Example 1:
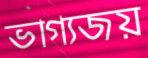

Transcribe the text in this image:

ভাগ্যজয়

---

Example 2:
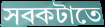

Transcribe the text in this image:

সবকটাতে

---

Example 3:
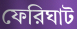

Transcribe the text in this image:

ফেরিঘাট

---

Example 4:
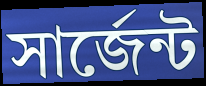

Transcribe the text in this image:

সার্জেন্ট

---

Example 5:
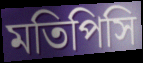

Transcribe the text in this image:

মতিপিসি